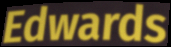
Edwards